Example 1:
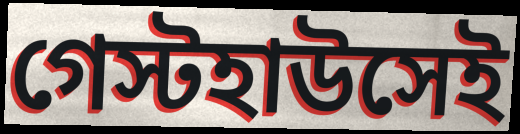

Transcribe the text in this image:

গেস্টহাউসেই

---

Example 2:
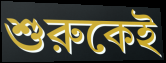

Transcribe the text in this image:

শুরুকেই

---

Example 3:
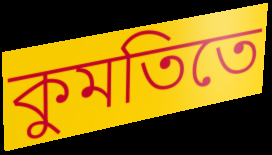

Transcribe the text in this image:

কুমতিতে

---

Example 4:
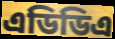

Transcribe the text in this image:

এডিডিএ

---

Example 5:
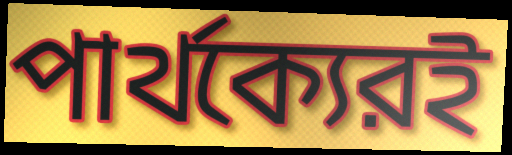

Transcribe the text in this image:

পার্থক্যেরই